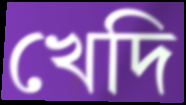
খেদি